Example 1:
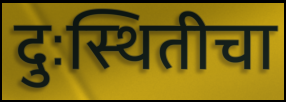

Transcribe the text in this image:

दुःस्थितीचा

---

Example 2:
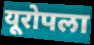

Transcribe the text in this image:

यूरोपला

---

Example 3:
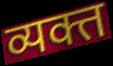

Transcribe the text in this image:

व्यक्त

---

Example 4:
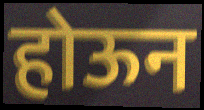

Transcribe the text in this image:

होऊन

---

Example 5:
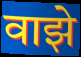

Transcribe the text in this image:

वाझे